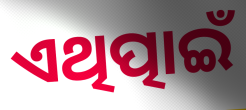
ଏଥିତ୍ପାଇଁ